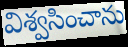
విశ్వసించాను